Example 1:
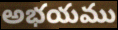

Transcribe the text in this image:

అభయము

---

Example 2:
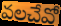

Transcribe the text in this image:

వలచేవో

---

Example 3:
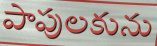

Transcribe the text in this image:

పాపులకును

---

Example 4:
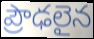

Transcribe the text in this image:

ప్రౌఢలైన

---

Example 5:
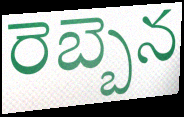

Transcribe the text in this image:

రెబ్బెన